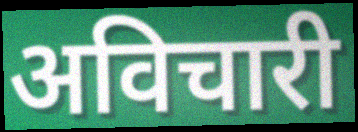
अविचारी